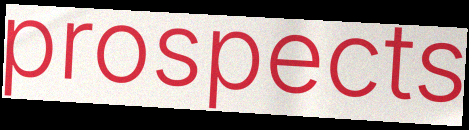
prospects